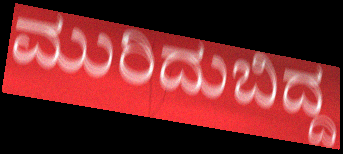
ಮುರಿದುಬಿದ್ದ